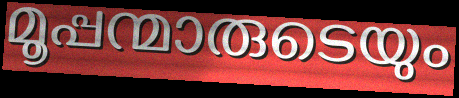
മൂപ്പന്മാരുടെയും